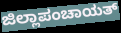
ಜಿಲ್ಲಾಪಂಚಾಯತ್